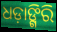
ଧଡ଼ାଙ୍ଗିରି